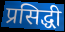
प्रसिद्धी